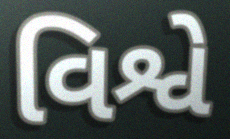
વિશ્વે